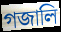
গজালি